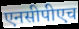
एनसीपीएच